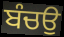
ਬੰਚਉ